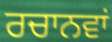
ਰਚਾਨਵਾਂ